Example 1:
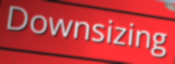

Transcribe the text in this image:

Downsizing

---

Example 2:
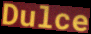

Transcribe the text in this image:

Dulce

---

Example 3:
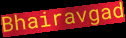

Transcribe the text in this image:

Bhairavgad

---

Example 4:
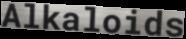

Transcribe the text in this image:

Alkaloids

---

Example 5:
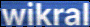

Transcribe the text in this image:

wikral